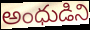
అంధుడిని